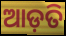
ଆଡ଼ତି